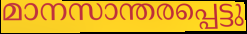
മാനസാന്തരപ്പെട്ടു